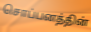
சொப்பனத்தின்